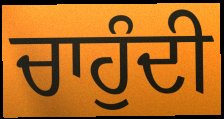
ਚਾਹੁੰਦੀ